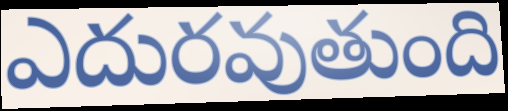
ఎదురవుతుంది